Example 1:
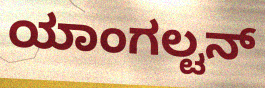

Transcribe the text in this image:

ಯಾಂಗಲ್ಟನ್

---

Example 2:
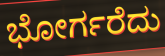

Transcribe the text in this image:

ಭೋರ್ಗರೆದು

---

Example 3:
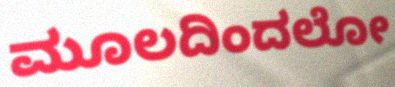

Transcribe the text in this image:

ಮೂಲದಿಂದಲೋ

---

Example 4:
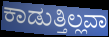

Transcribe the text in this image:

ಕಾಡುತ್ತಿಲ್ಲವಾ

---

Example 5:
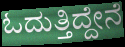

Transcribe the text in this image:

ಓದುತ್ತಿದ್ದೇನೆ